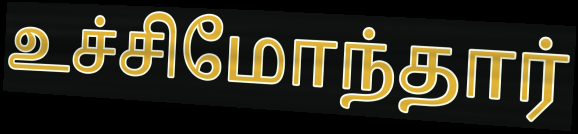
உச்சிமோந்தார்